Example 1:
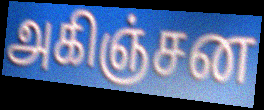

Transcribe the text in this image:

அகிஞ்சன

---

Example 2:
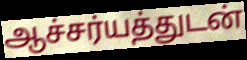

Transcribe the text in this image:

ஆச்சர்யத்துடன்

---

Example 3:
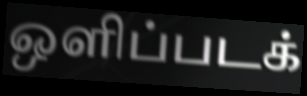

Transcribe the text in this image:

ஒளிப்படக்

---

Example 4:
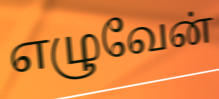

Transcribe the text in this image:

எழுவேன்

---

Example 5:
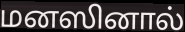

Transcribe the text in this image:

மனஸினால்